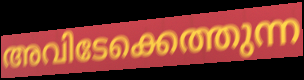
അവിടേക്കെത്തുന്ന